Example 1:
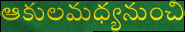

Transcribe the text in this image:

ఆకులమధ్యనుంచి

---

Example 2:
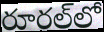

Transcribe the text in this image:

రూరల్‌లో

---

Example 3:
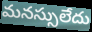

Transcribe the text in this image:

మనస్సులేదు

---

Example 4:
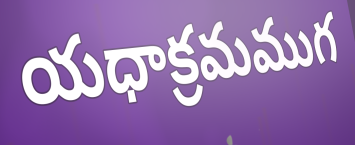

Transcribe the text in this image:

యధాక్రమముగ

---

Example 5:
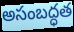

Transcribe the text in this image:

అసంబద్ధత